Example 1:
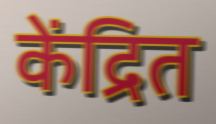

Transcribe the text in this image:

केंद्रित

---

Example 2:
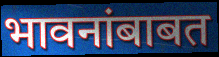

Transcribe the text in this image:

भावनांबाबत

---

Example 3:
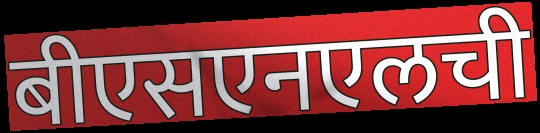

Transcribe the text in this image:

बीएसएनएलची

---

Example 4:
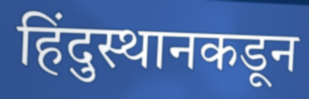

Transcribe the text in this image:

हिंदुस्थानकडून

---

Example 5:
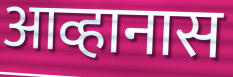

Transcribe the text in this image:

आव्हानास